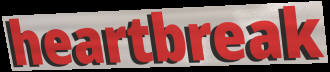
heartbreak